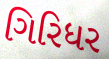
ગિરિધર